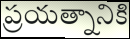
ప్రయత్నానికి